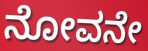
ನೋವನೇ